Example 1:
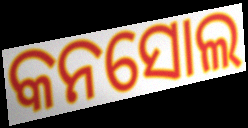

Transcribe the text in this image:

କନସୋଲ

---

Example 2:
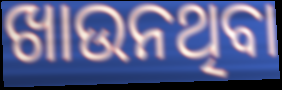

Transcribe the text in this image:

ଖାଉନଥିବା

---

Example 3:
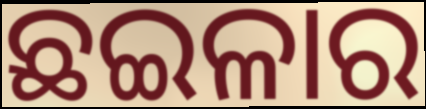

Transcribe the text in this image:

ଛଇଳାର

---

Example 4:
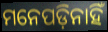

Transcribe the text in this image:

ମନେପଡ଼ିନାହିଁ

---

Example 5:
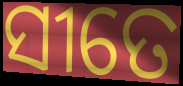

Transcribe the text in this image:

ସୀତେ